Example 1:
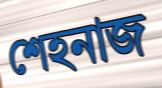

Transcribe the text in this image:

শেহনাজ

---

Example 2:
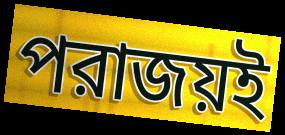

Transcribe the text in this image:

পরাজয়ই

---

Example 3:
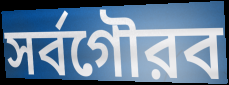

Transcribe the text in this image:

সর্বগৌরব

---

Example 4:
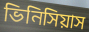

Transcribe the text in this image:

ভিনিসিয়াস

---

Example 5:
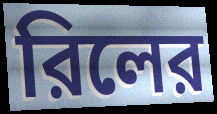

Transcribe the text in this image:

রিলের